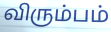
விரும்பம்